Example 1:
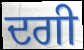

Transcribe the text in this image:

ਦਗੀ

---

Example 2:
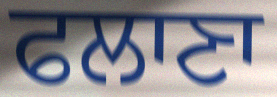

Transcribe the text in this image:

ਫਲਾਣਾ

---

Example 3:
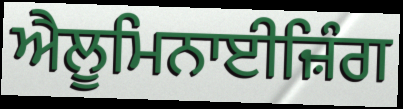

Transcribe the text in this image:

ਐਲੂਮਿਨਾਈਜ਼ਿੰਗ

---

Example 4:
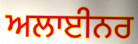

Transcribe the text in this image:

ਅਲਾਈਨਰ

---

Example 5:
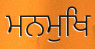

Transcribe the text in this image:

ਮਨਮੁਖਿ